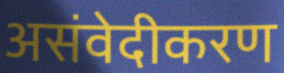
असंवेदीकरण